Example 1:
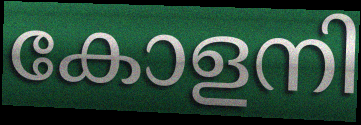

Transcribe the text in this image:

കോളനി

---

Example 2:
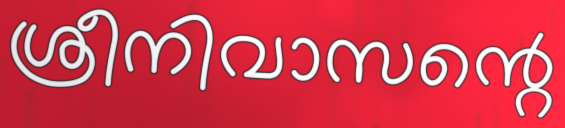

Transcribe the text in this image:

ശ്രീനിവാസന്റെ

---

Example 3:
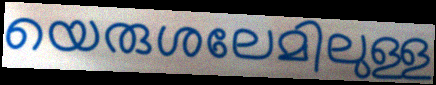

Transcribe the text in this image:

യെരുശലേമിലുള്ള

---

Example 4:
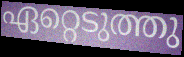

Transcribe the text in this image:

ഏറ്റെടുത്തു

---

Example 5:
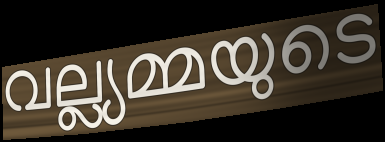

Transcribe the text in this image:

വല്ല്യമ്മയുടെ